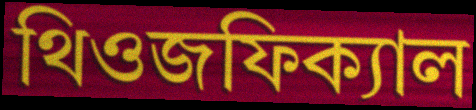
থিওজফিক্যাল